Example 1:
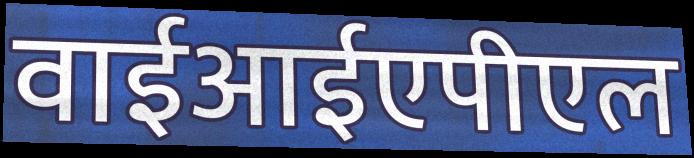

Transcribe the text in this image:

वाईआईएपीएल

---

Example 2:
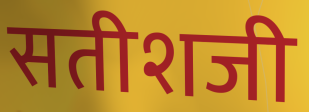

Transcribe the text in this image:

सतीशजी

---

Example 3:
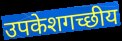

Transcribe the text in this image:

उपकेशगच्छीय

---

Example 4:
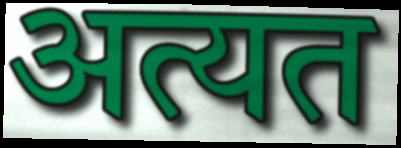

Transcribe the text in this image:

अत्यत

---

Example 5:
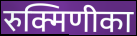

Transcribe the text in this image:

रुक्मिणीका